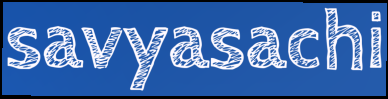
savyasachi